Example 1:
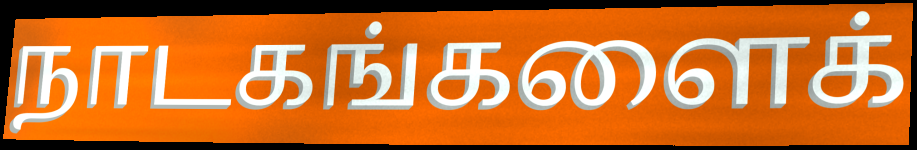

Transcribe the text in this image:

நாடகங்களைக்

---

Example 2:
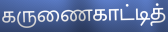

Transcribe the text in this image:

கருணைகாட்டித்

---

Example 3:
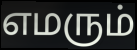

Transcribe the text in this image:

எமரும்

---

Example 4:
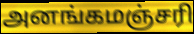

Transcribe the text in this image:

அனங்கமஞ்சரி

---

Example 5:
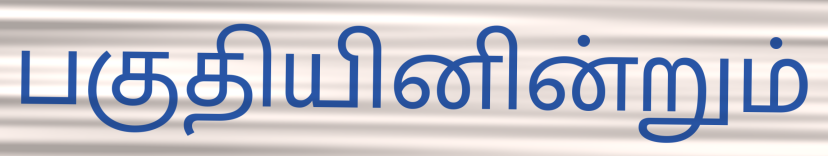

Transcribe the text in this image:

பகுதியினின்றும்